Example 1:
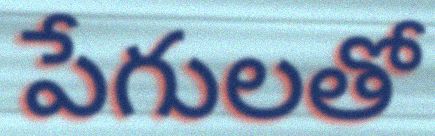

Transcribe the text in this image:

పేగులతో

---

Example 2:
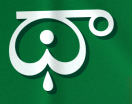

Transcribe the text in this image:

థా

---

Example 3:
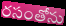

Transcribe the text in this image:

రసంతోను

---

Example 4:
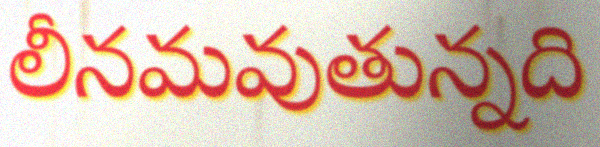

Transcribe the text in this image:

లీనమవుతున్నది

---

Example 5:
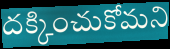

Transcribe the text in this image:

దక్కించుకోమని